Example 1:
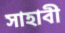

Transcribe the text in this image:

সাহাবী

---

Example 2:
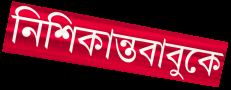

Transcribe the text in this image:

নিশিকান্তবাবুকে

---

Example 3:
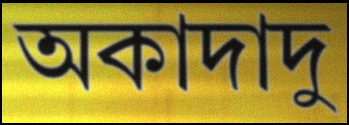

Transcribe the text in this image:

অকাদাদু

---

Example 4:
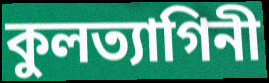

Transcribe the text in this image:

কুলত্যাগিনী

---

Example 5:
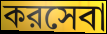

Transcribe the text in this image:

করসেবা